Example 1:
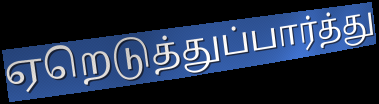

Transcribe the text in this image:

ஏறெடுத்துப்பார்த்து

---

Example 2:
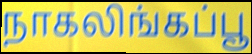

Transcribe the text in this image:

நாகலிங்கப்பூ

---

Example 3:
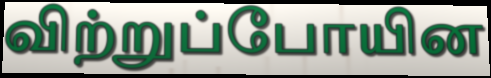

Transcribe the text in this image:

விற்றுப்போயின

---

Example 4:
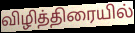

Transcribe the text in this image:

விழித்திரையில்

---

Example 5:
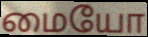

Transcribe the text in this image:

மையோ